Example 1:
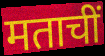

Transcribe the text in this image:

मताचीं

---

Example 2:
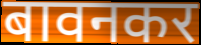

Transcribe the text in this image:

बावनकर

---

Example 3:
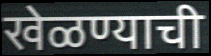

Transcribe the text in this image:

खेळण्याची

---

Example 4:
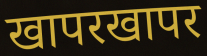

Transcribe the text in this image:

खापरखापर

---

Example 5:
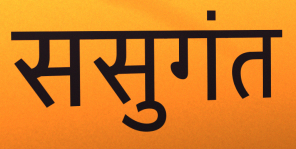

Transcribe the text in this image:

ससुगंत